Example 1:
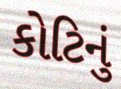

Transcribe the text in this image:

કોટિનું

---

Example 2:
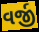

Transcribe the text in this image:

વર્જી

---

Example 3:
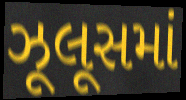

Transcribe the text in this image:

ઝૂલૂસમાં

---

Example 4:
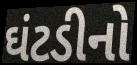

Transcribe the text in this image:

ઘંટડીનો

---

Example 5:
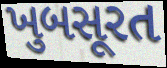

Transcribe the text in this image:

ખુબસૂરત